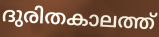
ദുരിതകാലത്ത്